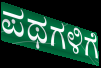
ಪಥಗಳಿಗೆ